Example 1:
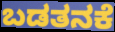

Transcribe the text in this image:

ಬಡತನಕೆ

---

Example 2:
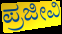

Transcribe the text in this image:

ಪ್ರಜೀವಿ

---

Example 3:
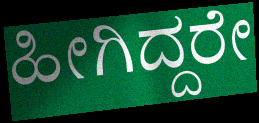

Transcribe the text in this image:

ಹೀಗಿದ್ದರೇ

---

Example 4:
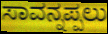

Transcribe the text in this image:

ಸಾವನ್ನಪ್ಪಲು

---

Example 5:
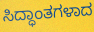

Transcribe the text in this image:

ಸಿದ್ಧಾಂತಗಳಾದ